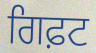
ਗਿਫ਼ਟ